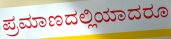
ಪ್ರಮಾಣದಲ್ಲಿಯಾದರೂ